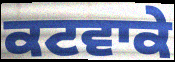
ਕਟਵਾਕੇ